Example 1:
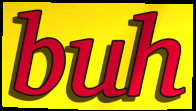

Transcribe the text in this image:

buh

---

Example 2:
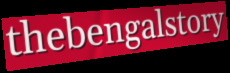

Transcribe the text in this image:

thebengalstory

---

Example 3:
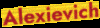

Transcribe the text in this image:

Alexievich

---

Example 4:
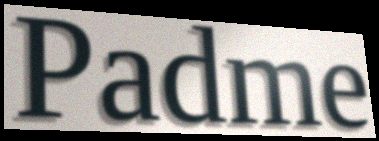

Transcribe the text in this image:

Padme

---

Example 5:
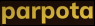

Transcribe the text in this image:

parpota